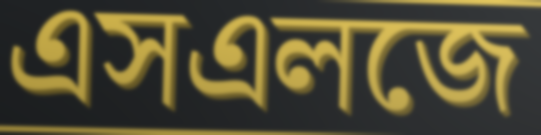
এসএলজে